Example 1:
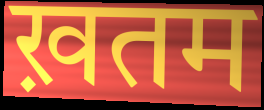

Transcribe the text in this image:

ख़तम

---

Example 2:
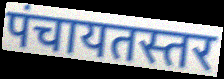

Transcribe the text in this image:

पंचायतस्तर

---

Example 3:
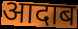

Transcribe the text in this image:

आदाब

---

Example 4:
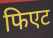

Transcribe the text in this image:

फिएट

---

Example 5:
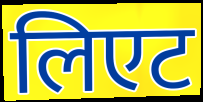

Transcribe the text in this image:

लिएट